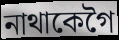
নাথাকেগৈ